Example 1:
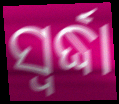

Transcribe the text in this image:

ସ୍ଵର୍ଦ୍ଧା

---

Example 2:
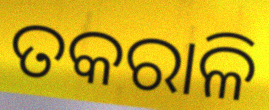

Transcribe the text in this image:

ତକରାଳି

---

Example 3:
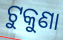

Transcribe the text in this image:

ଟୁକୁଣା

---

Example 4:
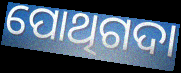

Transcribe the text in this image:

ପୋଥିଗଦା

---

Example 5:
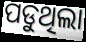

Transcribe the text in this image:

ପଡୁଥିଲା